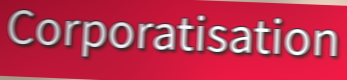
Corporatisation